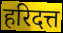
हरिदत्त